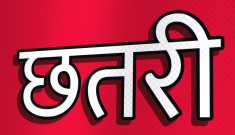
छतरी